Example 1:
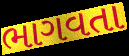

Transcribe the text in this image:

ભાગવતા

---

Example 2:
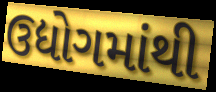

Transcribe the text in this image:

ઉદ્યોગમાંથી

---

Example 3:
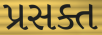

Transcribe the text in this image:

પ્રસક્ત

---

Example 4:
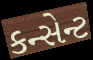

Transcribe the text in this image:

કન્સેન્ટ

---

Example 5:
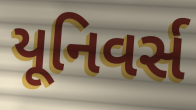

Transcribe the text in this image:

યૂનિવર્સ